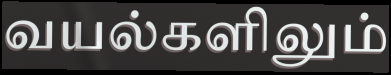
வயல்களிலும்